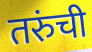
तरुंची